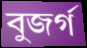
বুজর্গ